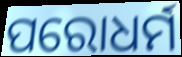
ପରୋଧର୍ମ